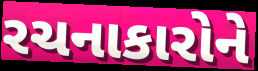
રચનાકારોને